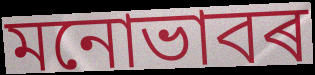
মনোভাবৰ